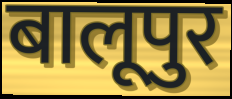
बालूपुर